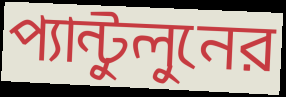
প্যান্টুলুনের